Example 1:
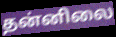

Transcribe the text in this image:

தன்னிலை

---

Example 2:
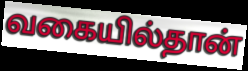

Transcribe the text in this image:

வகையில்தான்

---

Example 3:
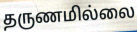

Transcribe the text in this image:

தருணமில்லை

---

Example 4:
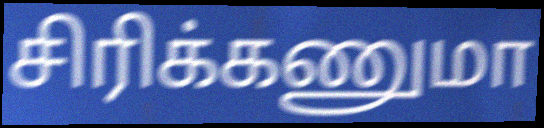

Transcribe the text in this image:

சிரிக்கணுமா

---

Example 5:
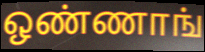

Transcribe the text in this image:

ஒண்ணாங்